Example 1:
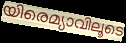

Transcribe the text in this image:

യിരെമ്യാവിലൂടെ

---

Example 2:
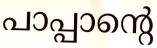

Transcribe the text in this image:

പാപ്പാന്റെ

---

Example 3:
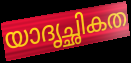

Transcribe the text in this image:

യാദൃച്ഛികത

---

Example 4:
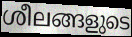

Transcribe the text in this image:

ശീലങ്ങളുടെ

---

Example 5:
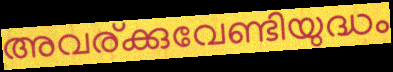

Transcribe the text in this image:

അവര്ക്കുവേണ്ടിയുദ്ധം